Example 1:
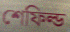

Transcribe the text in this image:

শেফিল্ড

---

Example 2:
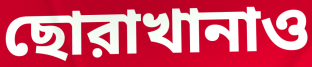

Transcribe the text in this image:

ছোরাখানাও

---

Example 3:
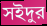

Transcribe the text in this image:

সইদুর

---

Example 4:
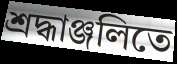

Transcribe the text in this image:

শ্রদ্ধাঞ্জলিতে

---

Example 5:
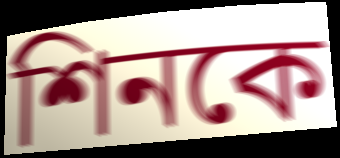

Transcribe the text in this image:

শিনকে